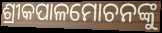
ଶ୍ରୀକପାଳମୋଚନଙ୍କୁ